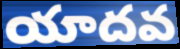
యాదవ